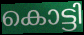
കൊട്ടി